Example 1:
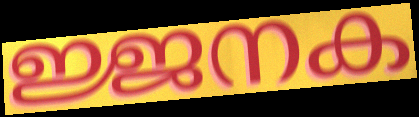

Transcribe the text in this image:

ജ്ജനക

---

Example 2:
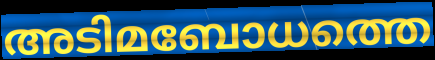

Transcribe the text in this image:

അടിമബോധത്തെ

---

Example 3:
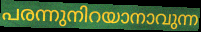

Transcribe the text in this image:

പരന്നുനിറയാനാവുന്ന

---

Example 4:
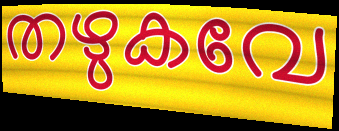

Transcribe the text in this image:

തഴുകവേ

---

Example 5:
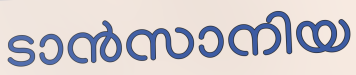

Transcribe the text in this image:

ടാൻസാനിയ